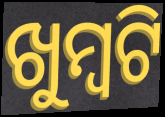
ଖୁମ୍ବଟି